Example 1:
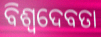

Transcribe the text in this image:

ବିଶ୍ୱଦେବତା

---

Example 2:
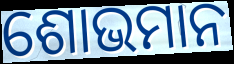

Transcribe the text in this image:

ଶୋଭମାନ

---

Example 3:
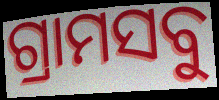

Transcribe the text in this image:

ଗ୍ରାମସବୁ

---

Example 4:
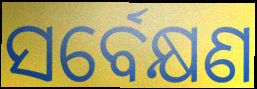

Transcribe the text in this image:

ସର୍ବେକ୍ଷଣ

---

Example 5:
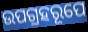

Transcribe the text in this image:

ଉପଗ୍ରହରୂପେ